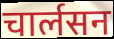
चार्लसन